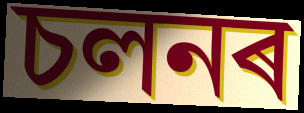
চলনৰ